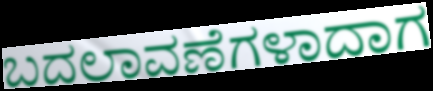
ಬದಲಾವಣೆಗಳಾದಾಗ